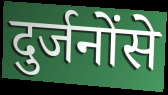
दुर्जनोंसे